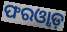
ଫରଓ୍ୱାଡ଼